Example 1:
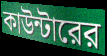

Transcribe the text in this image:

কাউন্টারের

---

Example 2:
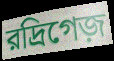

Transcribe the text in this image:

রদ্রিগেজ়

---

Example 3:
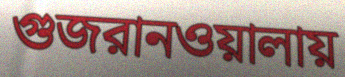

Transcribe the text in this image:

গুজরানওয়ালায়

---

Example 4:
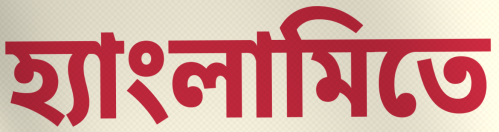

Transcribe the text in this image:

হ্যাংলামিতে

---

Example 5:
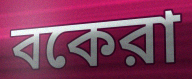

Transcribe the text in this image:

বকেরা